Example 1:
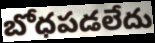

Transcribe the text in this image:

బోధపడలేదు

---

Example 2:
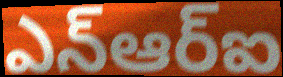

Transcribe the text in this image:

ఎన్ఆర్ఐ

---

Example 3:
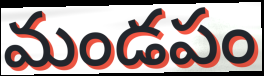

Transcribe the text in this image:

మండపం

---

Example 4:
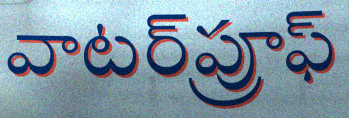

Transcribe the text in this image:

వాటర్‌ప్రూఫ్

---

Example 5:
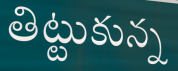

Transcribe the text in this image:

తిట్టుకున్న